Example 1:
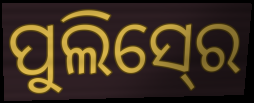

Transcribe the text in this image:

ପୁଲିସ୍‍ରେ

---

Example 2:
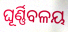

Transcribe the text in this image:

ଘୂର୍ଣ୍ଣିବଳୟ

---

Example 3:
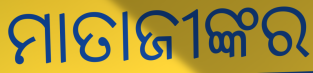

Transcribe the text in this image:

ମାତାଜୀଙ୍କର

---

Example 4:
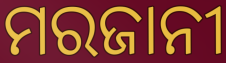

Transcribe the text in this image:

ମରଜାନୀ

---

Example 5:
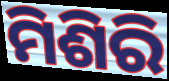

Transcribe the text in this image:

ମିଶିରି